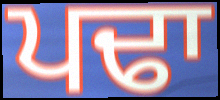
ਪਢਾ